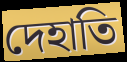
দেহাতি